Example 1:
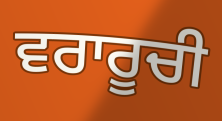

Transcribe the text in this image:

ਵਰਾਰੂਚੀ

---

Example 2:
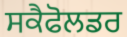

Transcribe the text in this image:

ਸਕੈਫੋਲਡਰ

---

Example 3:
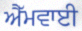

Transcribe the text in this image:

ਐੱਮਵਾਈ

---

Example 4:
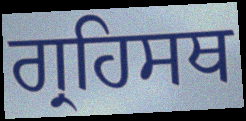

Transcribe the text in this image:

ਗ੍ਰਹਿਸਥ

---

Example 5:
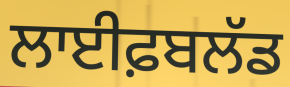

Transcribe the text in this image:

ਲਾਈਫ਼ਬਲੱਡ